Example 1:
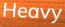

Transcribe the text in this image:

Heavy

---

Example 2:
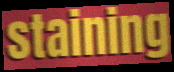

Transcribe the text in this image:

staining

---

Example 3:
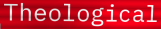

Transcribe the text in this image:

Theological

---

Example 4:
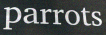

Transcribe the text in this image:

parrots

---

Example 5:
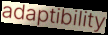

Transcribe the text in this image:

adaptibility